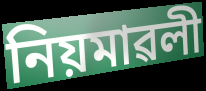
নিয়মাৱলী